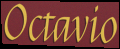
Octavio